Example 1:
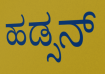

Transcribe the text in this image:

ಹಡ್ಸನ್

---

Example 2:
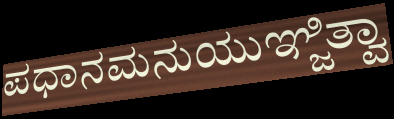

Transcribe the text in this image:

ಪಧಾನಮನುಯುಞ್ಜಿತ್ವಾ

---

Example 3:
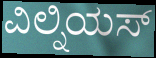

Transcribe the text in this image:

ವಿಲ್ನಿಯಸ್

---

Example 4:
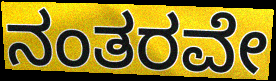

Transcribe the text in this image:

ನಂತರವೇ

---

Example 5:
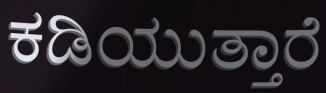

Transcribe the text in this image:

ಕಡಿಯುತ್ತಾರೆ